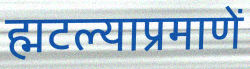
ह्मटल्याप्रमाणें